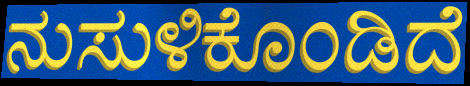
ನುಸುಳಿಕೊಂಡಿದೆ